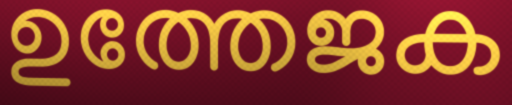
ഉത്തേജക